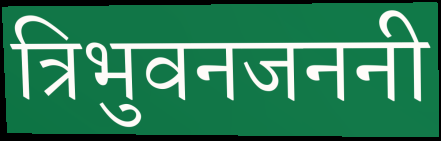
त्रिभुवनजननी